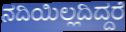
ನದಿಯಿಲ್ಲದಿದ್ದರೆ